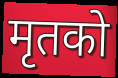
मृतको